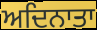
ਅਦਿਨਾਤਾ